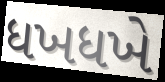
ધખધખે